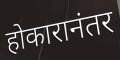
होकारानंतर